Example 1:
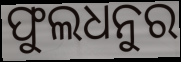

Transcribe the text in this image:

ଫୁଲଧନୁର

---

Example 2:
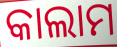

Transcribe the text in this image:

କାଲାମ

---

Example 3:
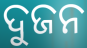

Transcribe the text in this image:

ଦୁଜନ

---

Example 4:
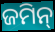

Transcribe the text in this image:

ଜମିନ୍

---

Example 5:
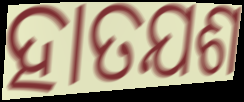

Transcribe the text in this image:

ହାତଯଶ